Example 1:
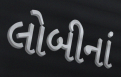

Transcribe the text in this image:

લોબીનાં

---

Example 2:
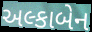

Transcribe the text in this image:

અલ્કાબેન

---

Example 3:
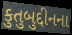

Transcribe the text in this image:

કુતુબુદ્દીનના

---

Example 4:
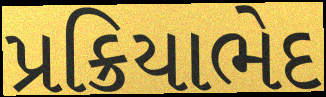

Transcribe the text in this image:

પ્રક્રિયાભેદ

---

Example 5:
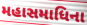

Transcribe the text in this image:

મહાસમાધિના